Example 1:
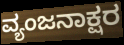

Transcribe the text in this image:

ವ್ಯಂಜನಾಕ್ಷರ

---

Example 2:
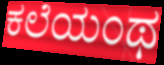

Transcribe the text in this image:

ಕಲೆಯಂಥ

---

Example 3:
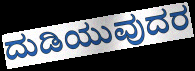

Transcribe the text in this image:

ದುಡಿಯುವುದರ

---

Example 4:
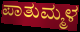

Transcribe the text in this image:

ಪಾತುಮ್ಮಳ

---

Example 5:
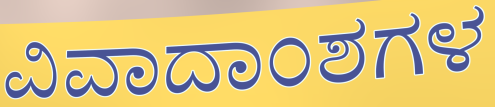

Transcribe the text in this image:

ವಿವಾದಾಂಶಗಳ